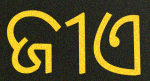
ଜୀଏ